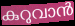
കുറുവാൻ